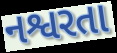
નશ્વરતા